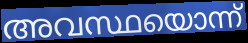
അവസ്ഥയൊന്ന്